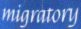
migratory